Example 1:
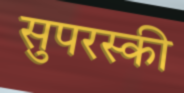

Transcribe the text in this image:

सुपरस्की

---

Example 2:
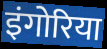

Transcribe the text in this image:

इंगोरिया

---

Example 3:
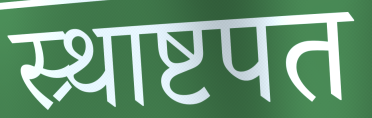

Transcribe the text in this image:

स्र्थाष्टपत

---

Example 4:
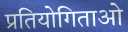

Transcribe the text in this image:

प्रतियोगिताओ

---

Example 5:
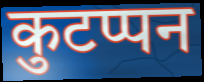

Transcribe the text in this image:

कुटप्पन